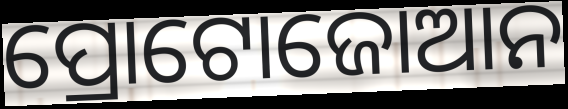
ପ୍ରୋଟୋଜୋଆନ